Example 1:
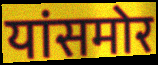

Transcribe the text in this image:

यांसमोर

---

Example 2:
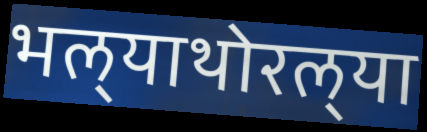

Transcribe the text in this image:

भल्याथोरल्या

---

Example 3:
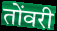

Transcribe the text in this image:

तोंवरी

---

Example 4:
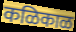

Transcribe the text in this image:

कळिकाळ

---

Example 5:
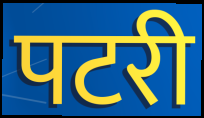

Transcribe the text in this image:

पटरी